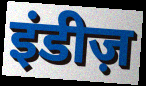
इंडीज़